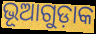
ଭୂଆଗୁଡ଼ାକ